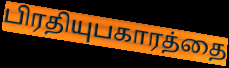
பிரதியுபகாரத்தை